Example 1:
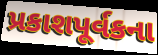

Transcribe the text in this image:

પ્રકાશપૂર્વકના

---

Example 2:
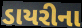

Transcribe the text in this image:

ડાયરીના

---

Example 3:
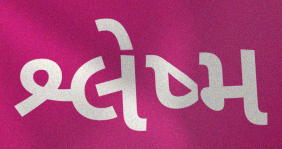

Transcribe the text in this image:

શ્લેષ્મ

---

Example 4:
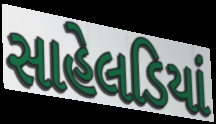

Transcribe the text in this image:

સાહેલડિયાં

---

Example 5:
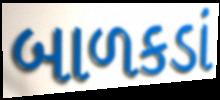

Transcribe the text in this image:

બાળકડાં